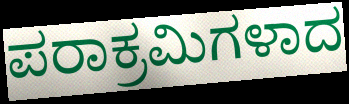
ಪರಾಕ್ರಮಿಗಳಾದ